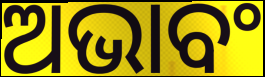
ଅଭାବଂ